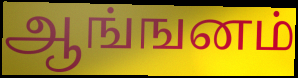
ஆங்ஙனம்